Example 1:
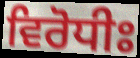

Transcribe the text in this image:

ਵਿਰੋਧੀਃ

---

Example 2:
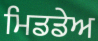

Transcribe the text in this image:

ਮਿਡਡੇਅ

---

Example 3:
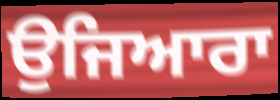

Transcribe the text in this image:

ਉਜਿਆਰਾ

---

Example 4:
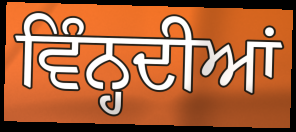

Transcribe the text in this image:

ਵਿੰਨ੍ਹਦੀਆਂ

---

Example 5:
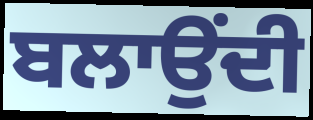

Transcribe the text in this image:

ਬਲਾਉਂਦੀ